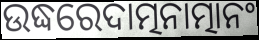
ଉଦ୍ଧରେଦାତ୍ମନାତ୍ମାନଂ